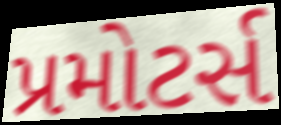
પ્રમોટર્સ